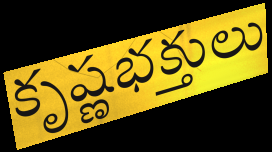
కృష్ణభక్తులు